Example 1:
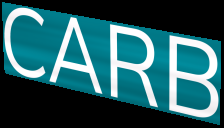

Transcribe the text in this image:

CARB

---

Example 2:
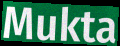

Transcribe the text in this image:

Mukta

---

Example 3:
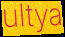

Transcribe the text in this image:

ultya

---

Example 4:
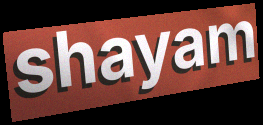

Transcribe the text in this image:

shayam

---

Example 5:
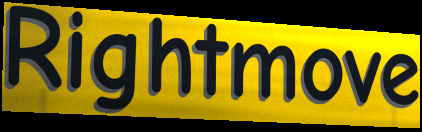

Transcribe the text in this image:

Rightmove